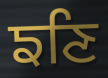
ਙਣਿ